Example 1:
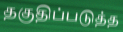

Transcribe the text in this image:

தகுதிப்படுத்த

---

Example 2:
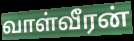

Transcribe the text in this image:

வாள்வீரன்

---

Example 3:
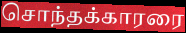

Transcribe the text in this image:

சொந்தக்காரரை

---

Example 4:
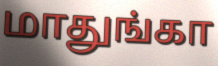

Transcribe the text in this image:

மாதுங்கா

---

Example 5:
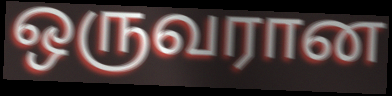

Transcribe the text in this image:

ஒருவரான